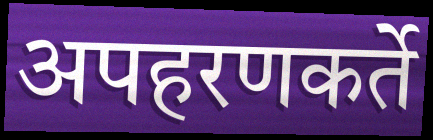
अपहरणकर्ते